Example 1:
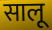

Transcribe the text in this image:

सालू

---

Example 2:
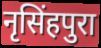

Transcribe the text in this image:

नृसिंहपुरा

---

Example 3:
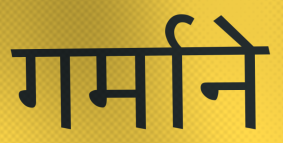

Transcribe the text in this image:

गर्माने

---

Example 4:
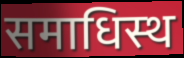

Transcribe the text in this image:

समाधिस्थ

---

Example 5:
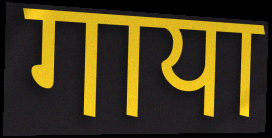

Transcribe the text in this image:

गाया